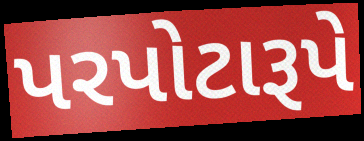
પરપોટારૂપે